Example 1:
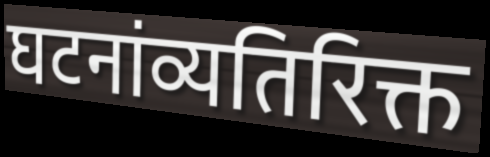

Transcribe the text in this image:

घटनांव्यतिरिक्त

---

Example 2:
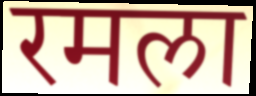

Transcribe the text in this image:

रमला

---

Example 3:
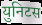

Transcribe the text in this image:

युनिटस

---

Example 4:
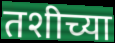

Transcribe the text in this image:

तशीच्या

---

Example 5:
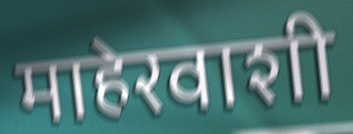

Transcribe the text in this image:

माहेरवाशी